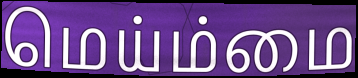
மெய்ம்மை